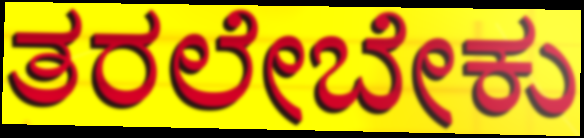
ತರಲೇಬೇಕು